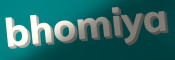
bhomiya